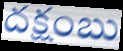
దక్షంబు